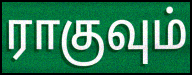
ராகுவும்